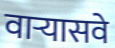
वाऱ्यासवे